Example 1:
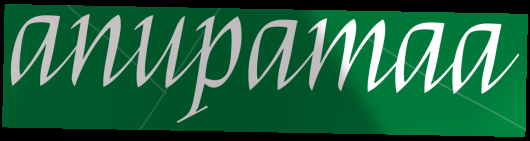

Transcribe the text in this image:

anupamaa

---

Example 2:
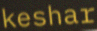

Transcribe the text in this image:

keshar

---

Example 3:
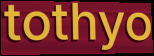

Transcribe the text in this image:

tothyo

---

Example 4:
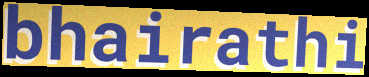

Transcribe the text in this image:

bhairathi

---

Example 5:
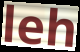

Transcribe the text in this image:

leh